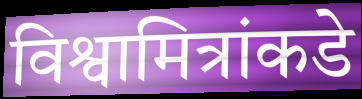
विश्वामित्रांकडे